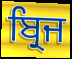
ਬ੍ਰਿਜ